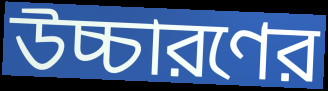
উচ্চারণের